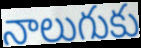
నాలుగుకు